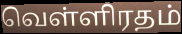
வெள்ளிரதம்